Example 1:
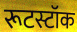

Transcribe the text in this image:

रूटस्टॉक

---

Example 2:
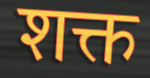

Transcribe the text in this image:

शक्त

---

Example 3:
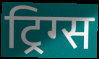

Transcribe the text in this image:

ट्रिग्स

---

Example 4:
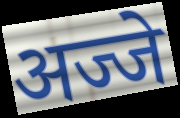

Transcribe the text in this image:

अज्जे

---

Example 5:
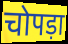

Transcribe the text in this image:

चोपड़ा